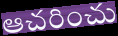
ఆచరించు